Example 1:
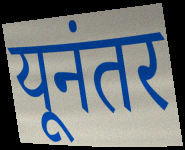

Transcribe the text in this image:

यूनंतर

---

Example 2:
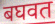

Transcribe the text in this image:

बघवत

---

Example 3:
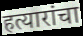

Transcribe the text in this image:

हत्यारांचा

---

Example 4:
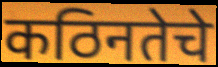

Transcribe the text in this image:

कठिनतेचे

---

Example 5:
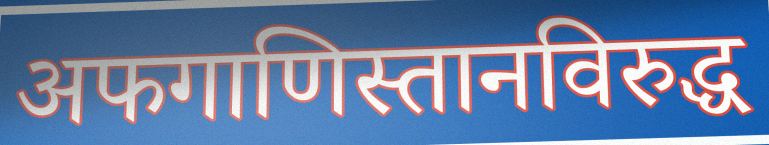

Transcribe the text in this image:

अफगाणिस्तानविरुद्ध